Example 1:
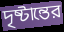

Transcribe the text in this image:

দৃষ্টান্তের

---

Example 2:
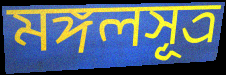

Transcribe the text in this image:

মঙ্গলসূত্র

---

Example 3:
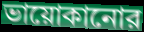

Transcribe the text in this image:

ভায়োকানোর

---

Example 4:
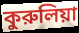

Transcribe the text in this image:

কুরুলিয়া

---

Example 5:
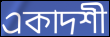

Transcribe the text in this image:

একাদশী